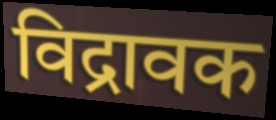
विद्रावक